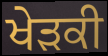
ਖੇੜਕੀ